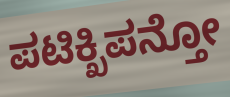
ಪಟಿಕ್ಖಿಪನ್ತೋ